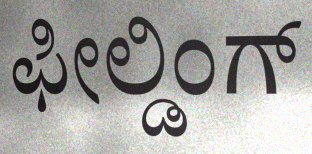
ಫೀಲ್ಡಿಂಗ್